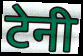
टेनी